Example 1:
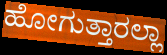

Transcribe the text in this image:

ಹೋಗುತ್ತಾರಲ್ಲಾ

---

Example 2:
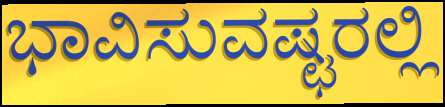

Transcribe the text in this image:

ಭಾವಿಸುವಷ್ಟರಲ್ಲಿ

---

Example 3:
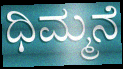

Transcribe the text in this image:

ಧಿಮ್ಮನೆ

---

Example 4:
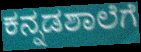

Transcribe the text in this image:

ಕನ್ನಡಶಾಲೆಗೆ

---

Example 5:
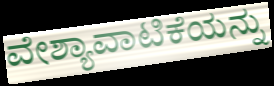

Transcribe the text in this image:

ವೇಶ್ಯಾವಾಟಿಕೆಯನ್ನು